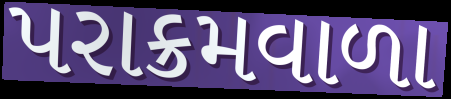
પરાક્રમવાળા